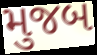
મુજબ